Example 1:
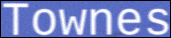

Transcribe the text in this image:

Townes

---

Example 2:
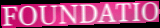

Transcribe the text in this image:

FOUNDATIO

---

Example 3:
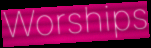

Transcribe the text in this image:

Worships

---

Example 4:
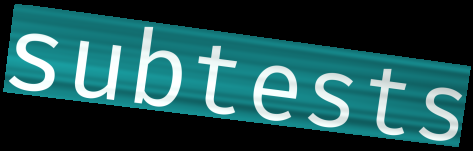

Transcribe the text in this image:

subtests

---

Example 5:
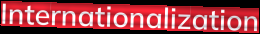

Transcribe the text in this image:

Internationalization